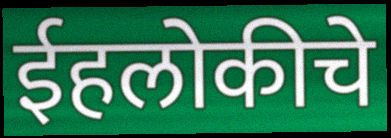
ईहलोकीचे